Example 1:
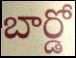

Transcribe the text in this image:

బార్డో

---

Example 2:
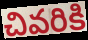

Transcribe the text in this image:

చివరికి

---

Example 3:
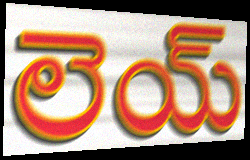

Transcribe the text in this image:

లెయ్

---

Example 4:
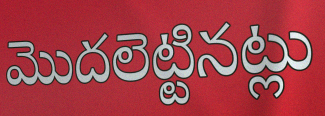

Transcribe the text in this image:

మొదలెట్టినట్లు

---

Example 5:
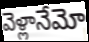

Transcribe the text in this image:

వెళ్లానేమో